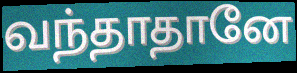
வந்தாதானே